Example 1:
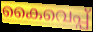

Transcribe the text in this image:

കൈവെപ്പ്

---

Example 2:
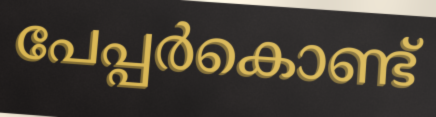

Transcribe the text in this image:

പേപ്പർകൊണ്ട്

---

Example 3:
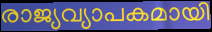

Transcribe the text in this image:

രാജ്യവ്യാപകമായി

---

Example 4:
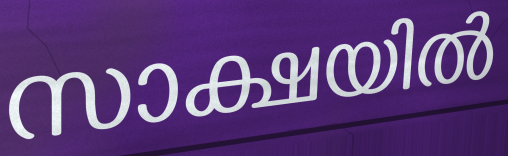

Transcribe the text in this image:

സാക്ഷയിൽ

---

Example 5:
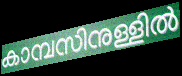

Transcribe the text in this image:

കാമ്പസിനുള്ളിൽ